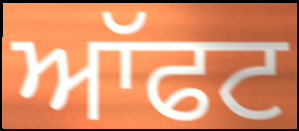
ਆੱਫਟ